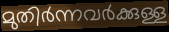
മുതിർന്നവർക്കുള്ള